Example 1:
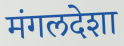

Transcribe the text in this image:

मंगलदेशा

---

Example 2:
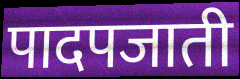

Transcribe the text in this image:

पादपजाती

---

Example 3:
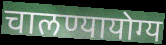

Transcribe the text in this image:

चालण्यायोग्य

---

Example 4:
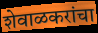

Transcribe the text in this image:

शेवाळकरांचा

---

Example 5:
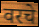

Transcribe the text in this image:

वरचे